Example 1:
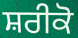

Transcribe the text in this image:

ਸ਼ਰੀਕੋ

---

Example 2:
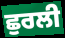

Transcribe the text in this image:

ਛੁਰਲੀ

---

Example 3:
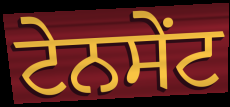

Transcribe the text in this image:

ਟੇਨਸੇਂਟ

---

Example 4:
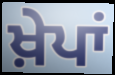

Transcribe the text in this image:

ਖ਼ੇਪਾਂ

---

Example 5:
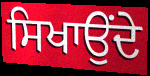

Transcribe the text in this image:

ਸਿਖਾਉਂਦੇ